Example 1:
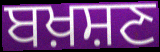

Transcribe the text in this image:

ਬਖ਼ਸ਼ਣ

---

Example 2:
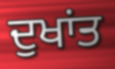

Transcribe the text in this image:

ਦੁਖਾਂਤ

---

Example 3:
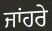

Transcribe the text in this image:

ਜਾਂਹਰੇ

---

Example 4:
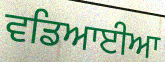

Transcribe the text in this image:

ਵਡਿਆਈਆ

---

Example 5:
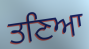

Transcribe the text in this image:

ਤਣਿਆ